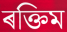
ৰক্তিম